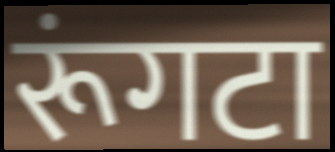
रूंगटा